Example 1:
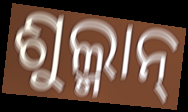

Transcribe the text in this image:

ଶୁଲ୍ମାନ୍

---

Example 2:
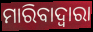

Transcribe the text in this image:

ମାରିବାଦ୍ୱାରା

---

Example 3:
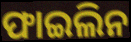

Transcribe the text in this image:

ଫାଇଲିନ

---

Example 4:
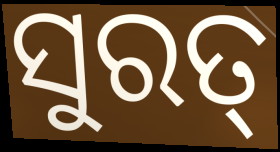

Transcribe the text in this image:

ସୁରତ୍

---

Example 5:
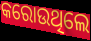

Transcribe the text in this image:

କରୋଉଥିଲେ